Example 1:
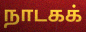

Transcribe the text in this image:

நாடகக்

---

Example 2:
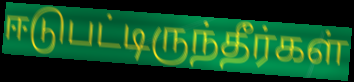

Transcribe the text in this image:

ஈடுபட்டிருந்தீர்கள்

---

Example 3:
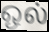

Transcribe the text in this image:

ஒல்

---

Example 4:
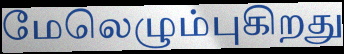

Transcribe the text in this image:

மேலெழும்புகிறது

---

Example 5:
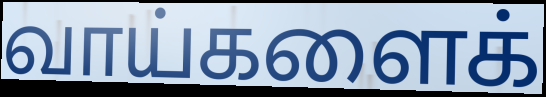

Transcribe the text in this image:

வாய்களைக்